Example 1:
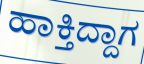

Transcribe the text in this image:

ಹಾಕ್ತಿದ್ದಾಗ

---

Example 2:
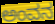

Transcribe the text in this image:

ಅಂವನ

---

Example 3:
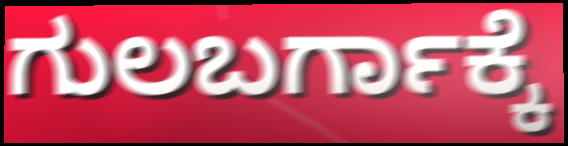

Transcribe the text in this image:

ಗುಲಬರ್ಗಾಕ್ಕೆ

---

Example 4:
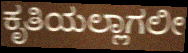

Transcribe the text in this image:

ಕೃತಿಯಲ್ಲಾಗಲೀ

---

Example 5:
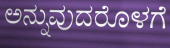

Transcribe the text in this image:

ಅನ್ನುವುದರೊಳಗೆ